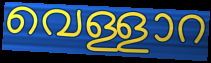
വെള്ളാറ